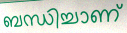
ബന്ധിച്ചാണ്